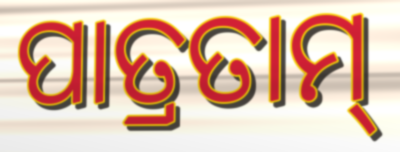
ପାତ୍ରତାମ୍